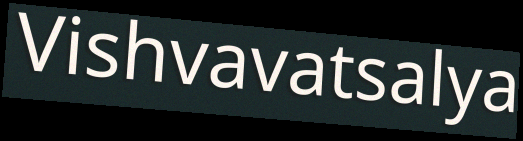
Vishvavatsalya